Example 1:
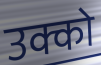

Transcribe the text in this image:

उक्को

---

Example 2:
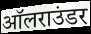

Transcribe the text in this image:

ऑलराउंडर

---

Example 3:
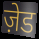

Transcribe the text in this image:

ज़ेड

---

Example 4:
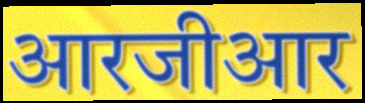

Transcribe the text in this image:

आरजीआर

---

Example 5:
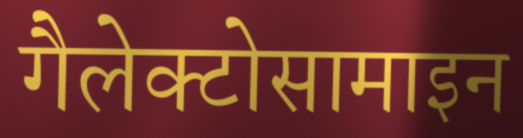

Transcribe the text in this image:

गैलेक्टोसामाइन